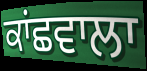
ਕਾਂਛਵਾਲਾ